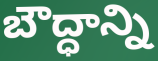
బౌద్ధాన్ని